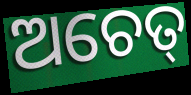
ଅଚେତ୍